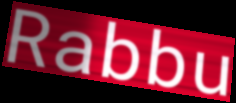
Rabbu